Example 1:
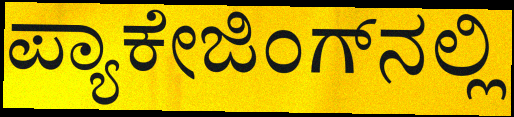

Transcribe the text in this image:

ಪ್ಯಾಕೇಜಿಂಗ್‌ನಲ್ಲಿ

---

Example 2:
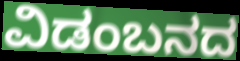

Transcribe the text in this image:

ವಿಡಂಬನದ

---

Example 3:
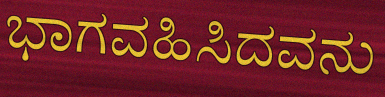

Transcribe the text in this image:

ಭಾಗವಹಿಸಿದವನು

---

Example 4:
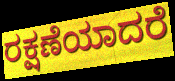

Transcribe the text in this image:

ರಕ್ಷಣೆಯಾದರೆ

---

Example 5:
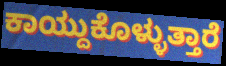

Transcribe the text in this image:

ಕಾಯ್ದುಕೊಳ್ಳುತ್ತಾರೆ